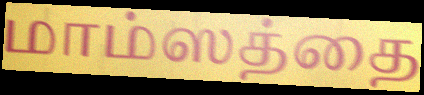
மாம்ஸத்தை